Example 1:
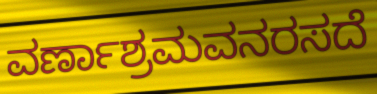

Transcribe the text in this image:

ವರ್ಣಾಶ್ರಮವನರಸದೆ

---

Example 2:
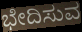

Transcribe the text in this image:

ಭೇದಿಸುವ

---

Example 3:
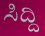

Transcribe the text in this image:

ಸಿದ್ದಿ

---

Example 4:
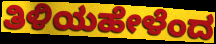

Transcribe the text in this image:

ತಿಳಿಯಹೇಳೆಂದ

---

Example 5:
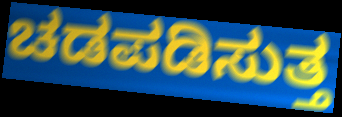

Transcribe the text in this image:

ಚಡಪಡಿಸುತ್ತ